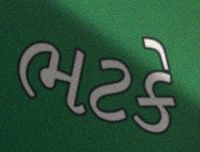
ભટકે